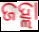
ଜହ୍ଲା